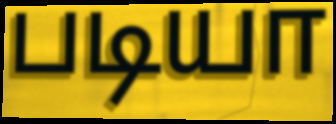
படியா